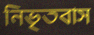
নিভৃতবাস